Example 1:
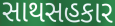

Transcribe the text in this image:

સાથસહકાર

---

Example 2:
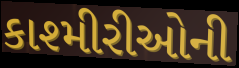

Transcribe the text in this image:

કાશ્મીરીઓની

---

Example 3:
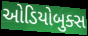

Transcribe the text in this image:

ઓડિયોબુક્સ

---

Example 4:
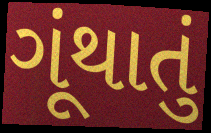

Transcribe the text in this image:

ગૂંથાતું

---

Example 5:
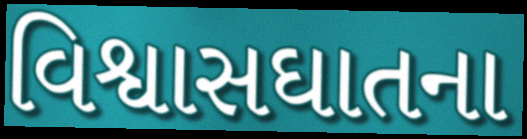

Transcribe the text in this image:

વિશ્વાસઘાતના